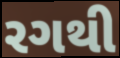
રગથી